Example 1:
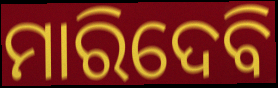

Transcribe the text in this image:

ମାରିଦେବି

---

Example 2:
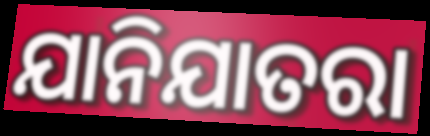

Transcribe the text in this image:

ଯାନିଯାତରା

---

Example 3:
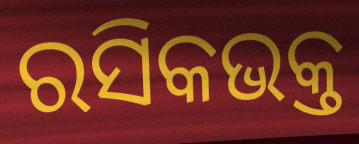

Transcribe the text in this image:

ରସିକଭକ୍ତ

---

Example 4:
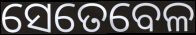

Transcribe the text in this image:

ସେତେବେଳ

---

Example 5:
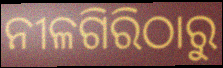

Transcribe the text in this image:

ନୀଳଗିରିଠାରୁ